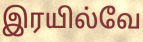
இரயில்வே